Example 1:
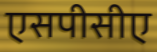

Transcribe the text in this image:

एसपीसीए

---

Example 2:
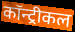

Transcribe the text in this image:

कॉन्ट्रीकल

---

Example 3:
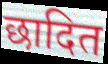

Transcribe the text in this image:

छादित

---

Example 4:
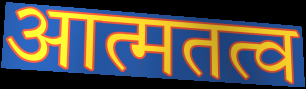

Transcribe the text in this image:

आत्मतत्व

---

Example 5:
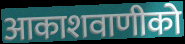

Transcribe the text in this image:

आकाशवाणीको